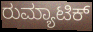
ರುಮ್ಯಾಟಿಕ್